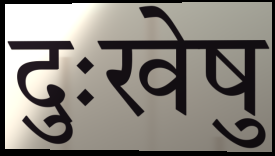
दुःखेषु